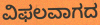
ವಿಫಲವಾಗದ